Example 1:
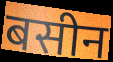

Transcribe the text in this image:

बसीन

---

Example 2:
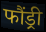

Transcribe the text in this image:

फौंड्री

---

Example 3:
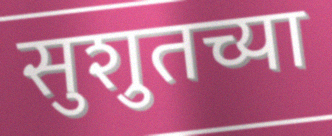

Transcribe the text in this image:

सुश्रुतच्या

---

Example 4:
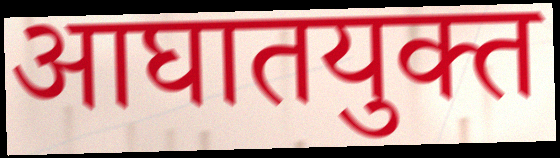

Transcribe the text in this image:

आघातयुक्त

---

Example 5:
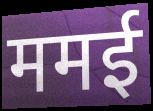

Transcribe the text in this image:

ममई